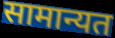
सामान्यत